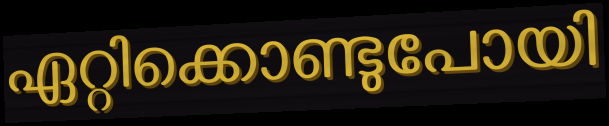
ഏറ്റിക്കൊണ്ടുപോയി